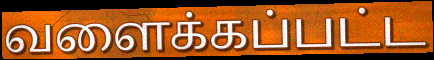
வளைக்கப்பட்ட